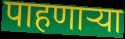
पाहणाऱ्या